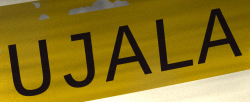
UJALA